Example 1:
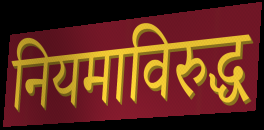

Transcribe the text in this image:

नियमाविरुद्ध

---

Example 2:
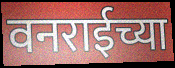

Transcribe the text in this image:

वनराईच्या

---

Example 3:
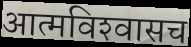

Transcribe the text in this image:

आत्मविश्वासच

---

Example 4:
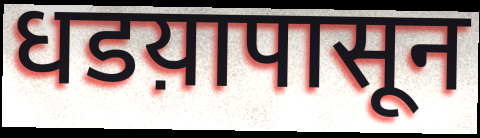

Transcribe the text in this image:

धडय़ापासून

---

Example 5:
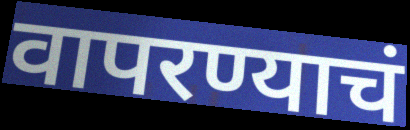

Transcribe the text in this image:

वापरण्याचं